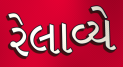
રેલાવ્યે